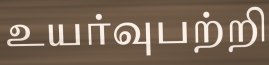
உயர்வுபற்றி